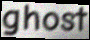
ghost